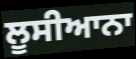
ਲੂਸੀਆਨਾ